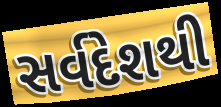
સર્વદેશથી